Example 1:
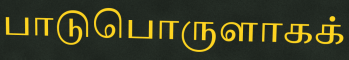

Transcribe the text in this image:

பாடுபொருளாகக்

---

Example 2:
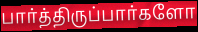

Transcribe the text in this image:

பார்த்திருப்பார்களோ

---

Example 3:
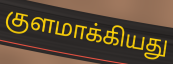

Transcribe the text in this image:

குளமாக்கியது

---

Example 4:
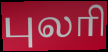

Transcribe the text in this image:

புலரி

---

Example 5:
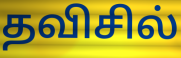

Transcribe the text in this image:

தவிசில்